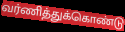
வர்ணித்துக்கொண்டு